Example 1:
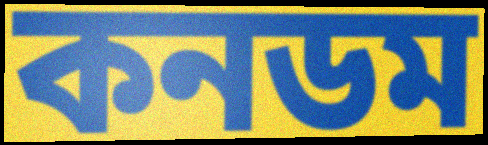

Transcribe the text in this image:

কনডম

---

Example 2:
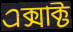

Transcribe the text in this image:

এক্সাক্ট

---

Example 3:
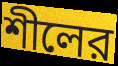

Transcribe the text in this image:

শীলের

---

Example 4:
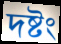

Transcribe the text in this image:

দষ্টং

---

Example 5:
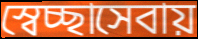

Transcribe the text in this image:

স্বেচ্ছাসেবায়